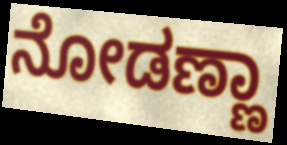
ನೋಡಣ್ಣಾ